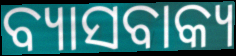
ବ୍ୟାସବାକ୍ୟ